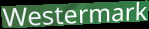
Westermark